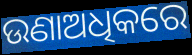
ଉଣାଅଧିକରେ